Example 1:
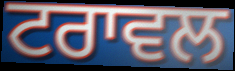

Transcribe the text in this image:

ਟਰਾਵਲ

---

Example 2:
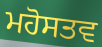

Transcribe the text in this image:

ਮਹੋਸਤਵ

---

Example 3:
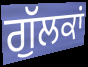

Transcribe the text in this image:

ਗੁੱਲਕਾਂ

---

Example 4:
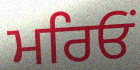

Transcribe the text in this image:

ਮਰਿਓਂ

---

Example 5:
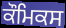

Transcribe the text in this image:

ਕੌਮਿਕਸ